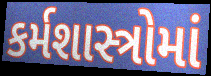
કર્મશાસ્ત્રોમાં